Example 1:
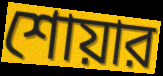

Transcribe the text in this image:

শোয়ার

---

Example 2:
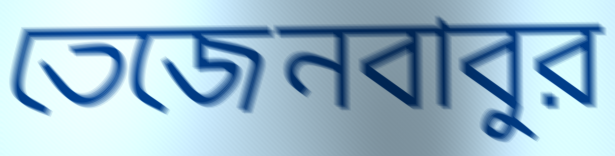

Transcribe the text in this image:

তেজেনবাবুর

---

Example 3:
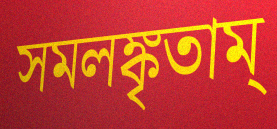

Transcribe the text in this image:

সমলঙ্কৃতাম্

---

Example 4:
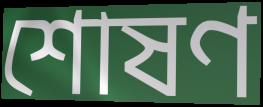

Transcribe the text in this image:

শোষণ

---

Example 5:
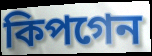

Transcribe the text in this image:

কিপগেন